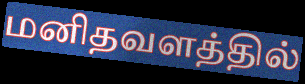
மனிதவளத்தில்